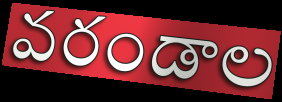
వరండాల